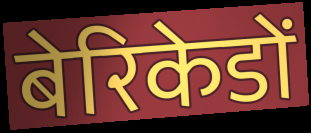
बेरिकेडों